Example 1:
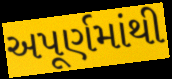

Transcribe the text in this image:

અપૂર્ણમાંથી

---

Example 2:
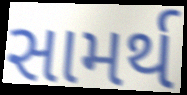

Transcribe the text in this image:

સામર્થ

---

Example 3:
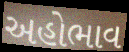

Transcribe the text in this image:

અહોભાવ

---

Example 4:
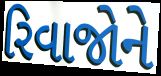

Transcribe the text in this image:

રિવાજોને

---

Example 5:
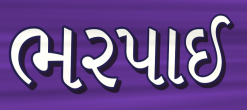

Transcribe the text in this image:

ભરપાઈ